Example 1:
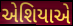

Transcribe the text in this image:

એશિયાએ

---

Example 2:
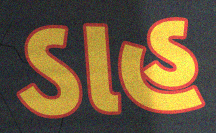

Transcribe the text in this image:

ડાહ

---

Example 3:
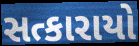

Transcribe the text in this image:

સત્કારાયો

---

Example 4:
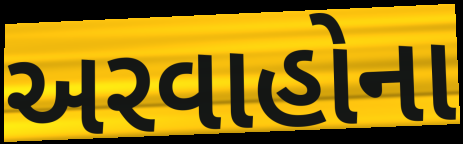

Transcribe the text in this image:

અરવાહોના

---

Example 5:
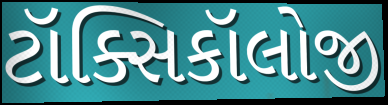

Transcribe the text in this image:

ટૉક્સિકૉલોજી